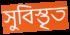
সুবিস্তৃত